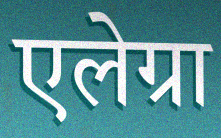
एलेग्रा